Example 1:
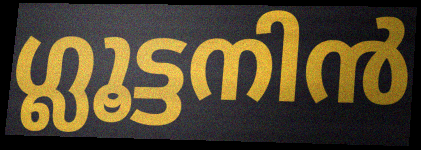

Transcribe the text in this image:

ഗ്ലൂട്ടനിൻ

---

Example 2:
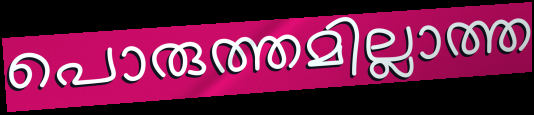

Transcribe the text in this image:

പൊരുത്തമില്ലാത്ത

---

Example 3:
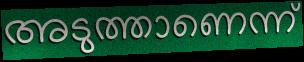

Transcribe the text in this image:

അടുത്താണെന്ന്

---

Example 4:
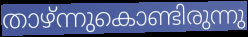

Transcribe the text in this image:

താഴ്ന്നുകൊണ്ടിരുന്നു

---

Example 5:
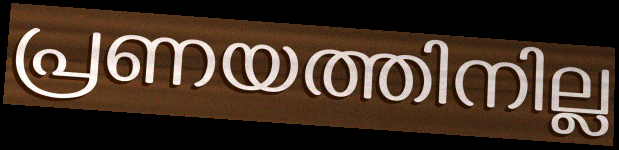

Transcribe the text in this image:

പ്രണയത്തിനില്ല